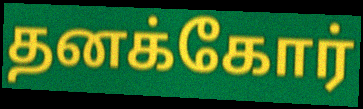
தனக்கோர்